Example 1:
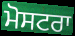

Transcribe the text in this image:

ਮੋਸਟਰਾ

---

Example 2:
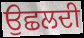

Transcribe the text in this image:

ਉਛਲਦੀ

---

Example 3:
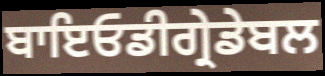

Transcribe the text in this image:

ਬਾਇਓਡੀਗ੍ਰੇਡੇਬਲ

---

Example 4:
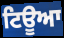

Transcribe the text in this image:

ਟਿਊਆ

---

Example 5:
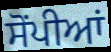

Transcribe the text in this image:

ਸੋਂਪੀਆਂ